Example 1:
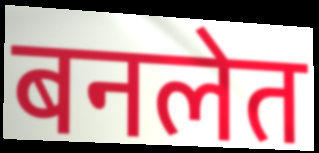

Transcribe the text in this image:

बनलेत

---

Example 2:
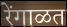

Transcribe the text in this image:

रेंगाळत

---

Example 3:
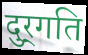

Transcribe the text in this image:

दुर्गति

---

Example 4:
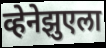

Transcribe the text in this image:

व्हेनेझुएला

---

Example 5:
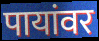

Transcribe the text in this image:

पायांवर